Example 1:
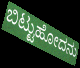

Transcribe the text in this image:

ಬಿಟ್ಟುಹೋದನು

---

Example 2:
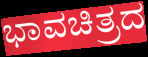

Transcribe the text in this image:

ಭಾವಚಿತ್ರದ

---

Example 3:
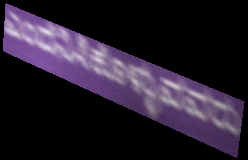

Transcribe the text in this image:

ಎಂದೆನಿಸಿಕೊಳ್ಳುವವರು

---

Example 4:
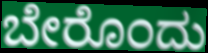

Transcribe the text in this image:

ಬೇರೊಂದು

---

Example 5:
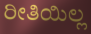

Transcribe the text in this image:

ರೀತಿಯಿಲ್ಲ